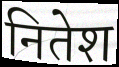
नितेश